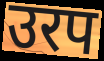
उरप